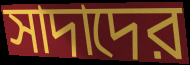
সাদাদের